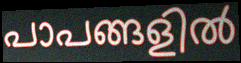
പാപങ്ങളിൽ